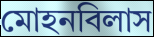
মোহনবিলাস